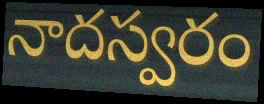
నాదస్వరం